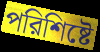
পরিশিষ্টে